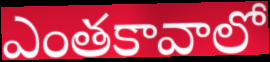
ఎంతకావాలో